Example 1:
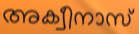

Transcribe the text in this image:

അക്വീനാസ്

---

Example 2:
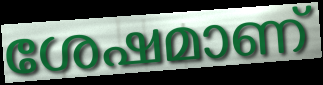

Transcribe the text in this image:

ശേഷമാണ്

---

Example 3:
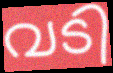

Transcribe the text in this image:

വടി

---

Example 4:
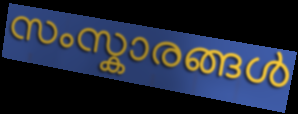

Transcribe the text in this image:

സംസ്കാരങ്ങൾ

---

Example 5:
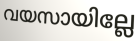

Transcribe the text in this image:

വയസായില്ലേ